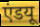
एंडयू